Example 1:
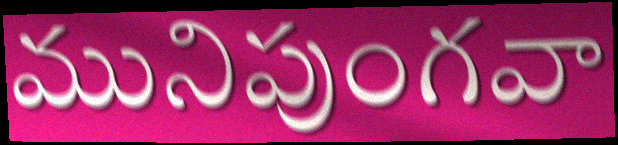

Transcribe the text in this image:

మునిపుంగవా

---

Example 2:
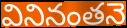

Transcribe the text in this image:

వినినంతనె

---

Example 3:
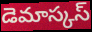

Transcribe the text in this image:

డెమాస్కస్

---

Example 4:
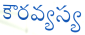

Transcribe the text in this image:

కౌరవ్యస్య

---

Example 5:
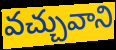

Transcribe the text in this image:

వచ్చువాని